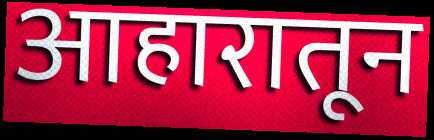
आहारातून